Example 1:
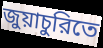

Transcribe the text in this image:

জুয়াচুরিতে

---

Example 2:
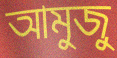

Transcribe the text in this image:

আমুজু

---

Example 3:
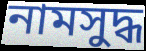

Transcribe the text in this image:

নামসুদ্ধ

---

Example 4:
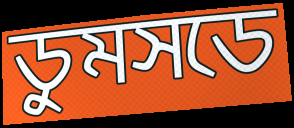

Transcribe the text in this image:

ডুমসডে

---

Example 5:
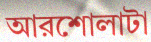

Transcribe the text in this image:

আরশোলাটা